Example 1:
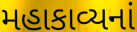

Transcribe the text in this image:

મહાકાવ્યનાં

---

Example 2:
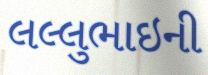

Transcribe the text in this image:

લલ્લુભાઇની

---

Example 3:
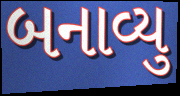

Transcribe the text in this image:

બનાવ્યુ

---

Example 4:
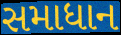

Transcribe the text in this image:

સમાધાન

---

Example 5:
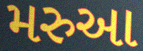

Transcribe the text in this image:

મરુઆ